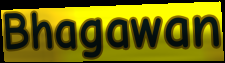
Bhagawan